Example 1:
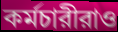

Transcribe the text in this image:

কর্মচারীরাও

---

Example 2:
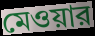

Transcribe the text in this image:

মেওয়ার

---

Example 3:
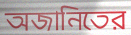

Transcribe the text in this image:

অজানিতের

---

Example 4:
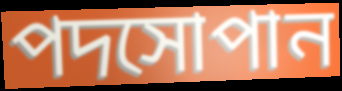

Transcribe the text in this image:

পদসোপান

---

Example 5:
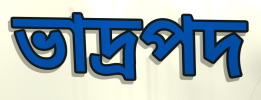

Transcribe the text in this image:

ভাদ্রপদ